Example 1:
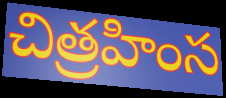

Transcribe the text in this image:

చిత్రహింస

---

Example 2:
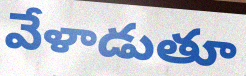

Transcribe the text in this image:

వేళాడుతూ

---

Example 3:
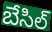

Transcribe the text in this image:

బేసిల్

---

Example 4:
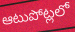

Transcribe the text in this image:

ఆటుపోట్లలో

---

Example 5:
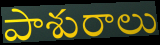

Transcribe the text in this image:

పాశురాలు